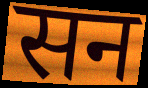
सन